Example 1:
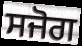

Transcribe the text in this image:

ਸਜੋਗ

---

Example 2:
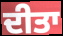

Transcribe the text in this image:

ਦੀਤਾ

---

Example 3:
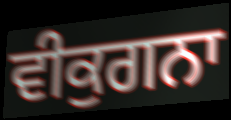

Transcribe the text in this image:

ਵੀਕੁਗਨਾ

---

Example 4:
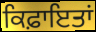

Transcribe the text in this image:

ਕਿਫ਼ਾਇਤਾਂ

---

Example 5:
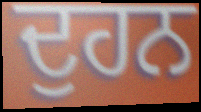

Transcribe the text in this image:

ਦੁਹਨ